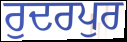
ਰੁਦਰਪੁਰ